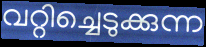
വറ്റിച്ചെടുക്കുന്ന